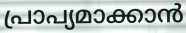
പ്രാപ്യമാക്കാൻ